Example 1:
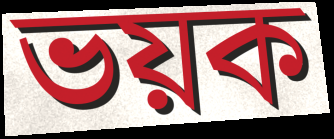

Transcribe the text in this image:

ভয়ক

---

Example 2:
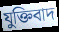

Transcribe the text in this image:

যুক্তিবাদ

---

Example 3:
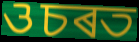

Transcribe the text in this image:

ওচৰত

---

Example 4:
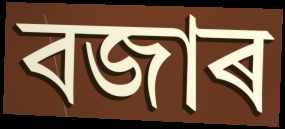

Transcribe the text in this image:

বজাৰ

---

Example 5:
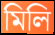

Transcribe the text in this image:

মিলি